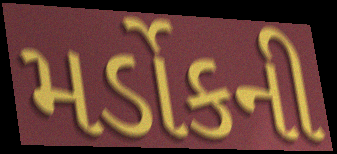
મર્ડોકની